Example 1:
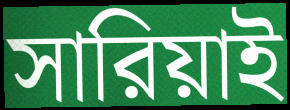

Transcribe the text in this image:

সারিয়াই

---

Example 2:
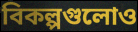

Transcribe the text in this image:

বিকল্পগুলোও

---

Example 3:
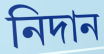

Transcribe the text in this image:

নিদান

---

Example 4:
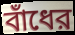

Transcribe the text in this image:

বাঁধের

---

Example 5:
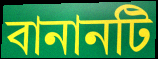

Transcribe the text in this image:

বানানটি